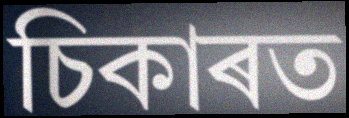
চিকাৰত